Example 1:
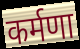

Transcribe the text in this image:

कर्मणा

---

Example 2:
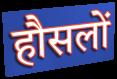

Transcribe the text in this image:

हौसलों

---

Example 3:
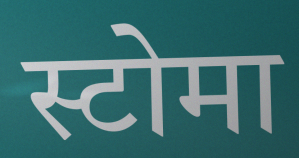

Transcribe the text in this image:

स्टोमा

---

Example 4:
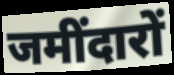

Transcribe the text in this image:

जमींदारों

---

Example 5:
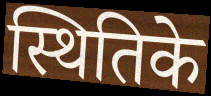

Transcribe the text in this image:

स्थितिके